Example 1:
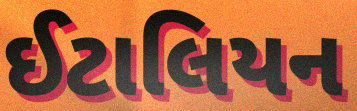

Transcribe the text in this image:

ઈટાલિયન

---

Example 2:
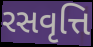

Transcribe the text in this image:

રસવૃત્તિ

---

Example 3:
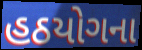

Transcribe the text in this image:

હઠયોગના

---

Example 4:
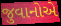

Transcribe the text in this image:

જુવાનોએ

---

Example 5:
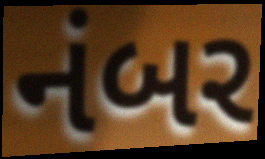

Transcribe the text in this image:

નંબર